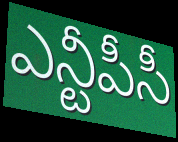
ఎన్టీపీసీ